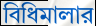
বিধিমালার